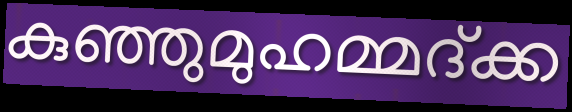
കുഞ്ഞുമുഹമ്മദ്ക്ക